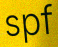
spf